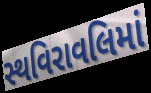
સ્થવિરાવલિમાં